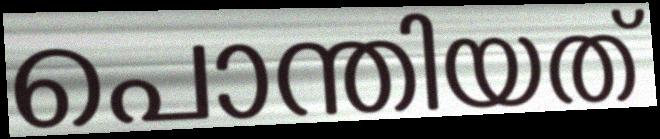
പൊന്തിയത്